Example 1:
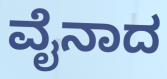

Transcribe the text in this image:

ವೈನಾದ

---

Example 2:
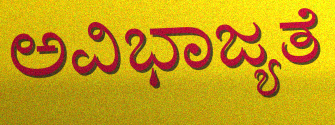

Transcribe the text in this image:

ಅವಿಭಾಜ್ಯತೆ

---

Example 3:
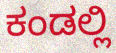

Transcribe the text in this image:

ಕಂಡಲ್ಲಿ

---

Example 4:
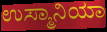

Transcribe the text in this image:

ಉಸ್ಮಾನಿಯಾ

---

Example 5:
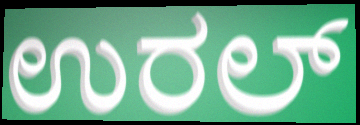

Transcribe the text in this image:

ಉರಲ್